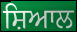
ਸ਼ਿਆਲ